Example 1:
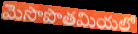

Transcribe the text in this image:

మెసొపొతమియలో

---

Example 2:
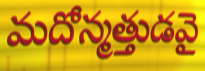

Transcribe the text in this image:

మదోన్మత్తుడవై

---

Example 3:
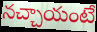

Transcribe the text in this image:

నచ్చాయంటే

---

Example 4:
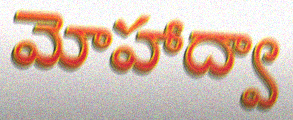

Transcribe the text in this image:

మోహాద్వా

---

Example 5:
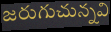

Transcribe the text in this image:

జరుగుచున్నవి